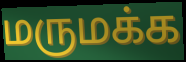
மருமக்க